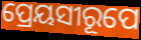
ପ୍ରେୟସୀରୂପେ